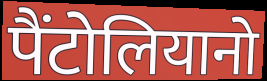
पैंटोलियानो